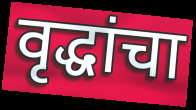
वृद्धांचा